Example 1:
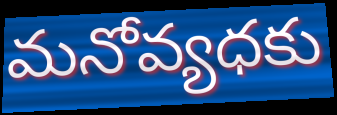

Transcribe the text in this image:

మనోవ్యధకు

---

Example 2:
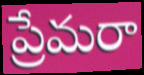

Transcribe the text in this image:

ప్రేమరా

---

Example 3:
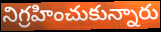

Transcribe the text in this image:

నిగ్రహించుకున్నారు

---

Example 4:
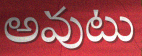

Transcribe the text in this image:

అవుటు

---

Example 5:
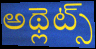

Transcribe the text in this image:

అథ్లెట్స్